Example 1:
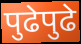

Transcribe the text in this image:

पुढेपुढे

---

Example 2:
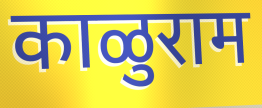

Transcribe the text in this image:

काळुराम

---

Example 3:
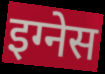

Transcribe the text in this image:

इग्नेस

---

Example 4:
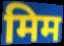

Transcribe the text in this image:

मिम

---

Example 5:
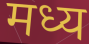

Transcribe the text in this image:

मध्य